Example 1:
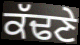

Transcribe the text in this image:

ਕੱਢਣੇ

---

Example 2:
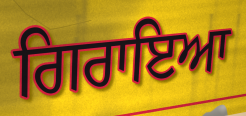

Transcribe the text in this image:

ਗਿਰਾਇਆ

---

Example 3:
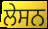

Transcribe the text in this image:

ਲੇਸਨ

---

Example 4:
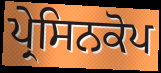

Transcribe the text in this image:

ਪ੍ਰੇਸਿਨਕੋਪ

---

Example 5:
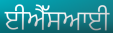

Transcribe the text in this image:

ਈਐੱਸਆਈ